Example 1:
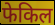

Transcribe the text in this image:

फेकिल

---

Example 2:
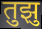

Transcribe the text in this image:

तुझु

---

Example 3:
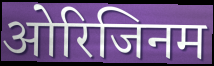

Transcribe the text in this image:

ओरिजिनम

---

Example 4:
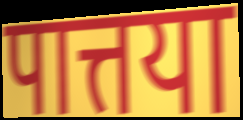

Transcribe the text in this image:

पात्तया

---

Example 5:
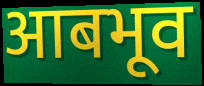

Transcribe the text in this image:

आबभूव